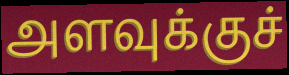
அளவுக்குச்